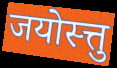
जयोस्त्तु